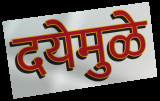
दयेमुळे